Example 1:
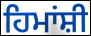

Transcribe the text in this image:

ਹਿਮਾਂਸ਼ੀ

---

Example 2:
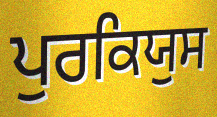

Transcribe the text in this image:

ਪੁਰਕਿਯੁਸ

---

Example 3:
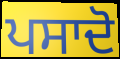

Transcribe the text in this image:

ਪਸਾਦੋ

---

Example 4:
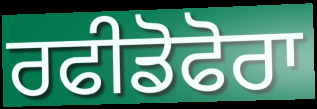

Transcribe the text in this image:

ਰਫੀਡੋਫੋਰਾ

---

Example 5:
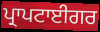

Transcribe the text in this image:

ਪ੍ਰਾਪਟਾਈਗਰ